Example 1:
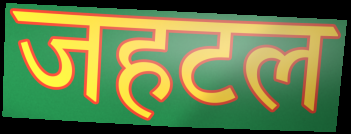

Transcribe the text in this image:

जहटल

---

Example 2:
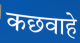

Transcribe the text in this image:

कछवाहे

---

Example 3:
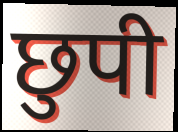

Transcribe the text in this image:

छुपी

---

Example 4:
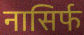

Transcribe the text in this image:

नासिर्फ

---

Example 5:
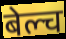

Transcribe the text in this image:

बेल्च